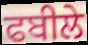
ਫਬੀਲੇ